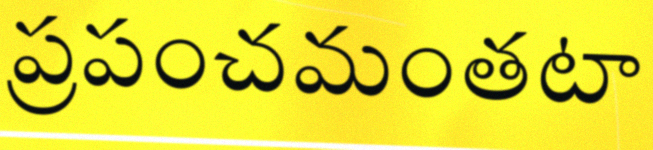
ప్రపంచమంతటా